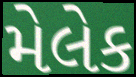
મેલેક